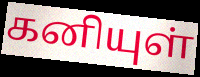
கனியுள்